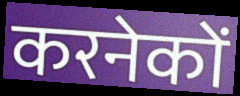
करनेकों